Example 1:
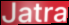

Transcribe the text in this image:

Jatra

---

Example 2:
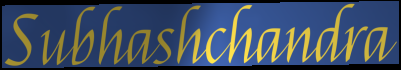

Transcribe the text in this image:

Subhashchandra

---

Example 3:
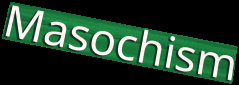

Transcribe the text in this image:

Masochism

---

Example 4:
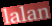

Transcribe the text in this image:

lalan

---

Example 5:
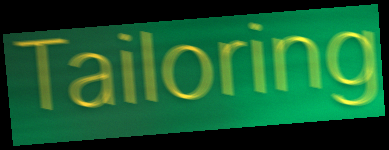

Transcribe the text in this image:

Tailoring